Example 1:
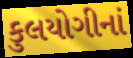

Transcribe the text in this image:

કુલયોગીનાં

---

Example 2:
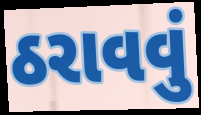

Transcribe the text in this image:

ઠરાવવું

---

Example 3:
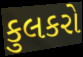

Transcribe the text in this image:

કુલકરો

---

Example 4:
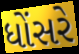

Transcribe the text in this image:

ધોંસરે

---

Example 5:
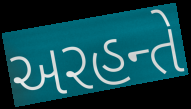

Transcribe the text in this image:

અરહન્તે